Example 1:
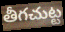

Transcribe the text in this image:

తీగచుట్ట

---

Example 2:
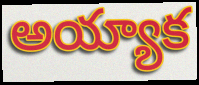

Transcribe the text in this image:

అయ్యాక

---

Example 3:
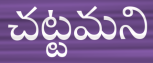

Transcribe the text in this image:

చట్టమని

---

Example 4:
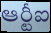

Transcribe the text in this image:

ఆర్టీఐ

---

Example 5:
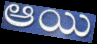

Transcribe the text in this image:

ఆయి